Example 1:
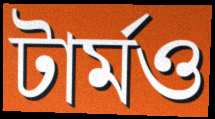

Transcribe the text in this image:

টার্মও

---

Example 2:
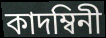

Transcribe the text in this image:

কাদম্বিনী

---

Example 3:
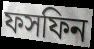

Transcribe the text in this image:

ফসফিন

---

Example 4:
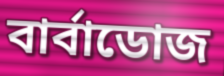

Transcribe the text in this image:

বার্বাডোজ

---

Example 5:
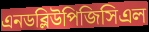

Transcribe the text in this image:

এনডব্লিউপিজিসিএল